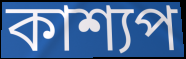
কাশ্যপ